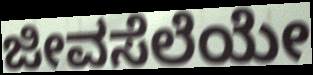
ಜೀವಸೆಲೆಯೇ